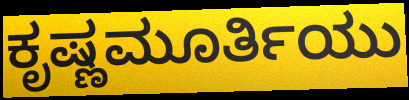
ಕೃಷ್ಣಮೂರ್ತಿಯು